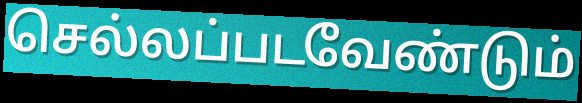
செல்லப்படவேண்டும்